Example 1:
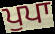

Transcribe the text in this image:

ਪੁਪਾ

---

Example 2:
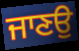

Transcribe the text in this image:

ਜਾਣਉ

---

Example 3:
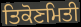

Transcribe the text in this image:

ਤਿਕੋਣਮਿਤੀ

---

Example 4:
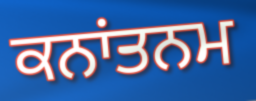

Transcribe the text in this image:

ਕਨਾਂਤਨਮ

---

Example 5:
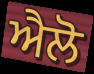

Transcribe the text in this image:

ਐਲੋ